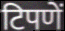
टिपणें